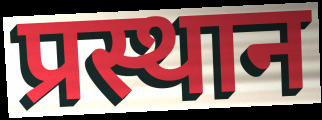
प्रस्थान